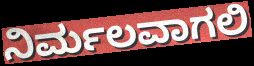
ನಿರ್ಮಲವಾಗಲಿ